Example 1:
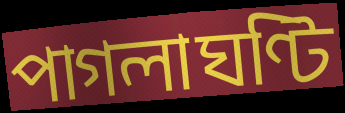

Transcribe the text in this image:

পাগলাঘণ্টি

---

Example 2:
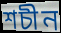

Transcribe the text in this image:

শচীন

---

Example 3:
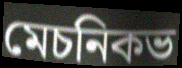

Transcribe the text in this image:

মেচনিকভ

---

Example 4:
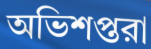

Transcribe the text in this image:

অভিশপ্তরা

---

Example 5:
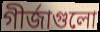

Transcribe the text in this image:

গীর্জাগুলো